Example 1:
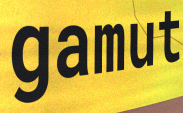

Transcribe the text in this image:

gamut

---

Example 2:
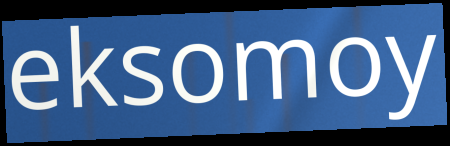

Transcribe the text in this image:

eksomoy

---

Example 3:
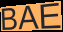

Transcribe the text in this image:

BAE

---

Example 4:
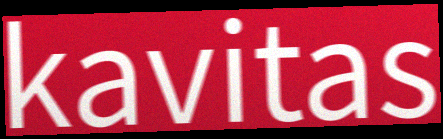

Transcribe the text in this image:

kavitas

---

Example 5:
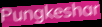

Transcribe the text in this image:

Pungkeshar